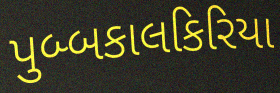
પુબ્બકાલકિરિયા